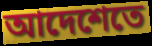
আদেশেতে